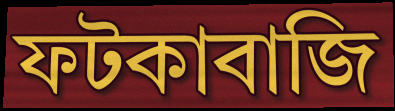
ফটকাবাজি